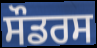
ਸੌਡਰਸ